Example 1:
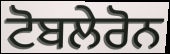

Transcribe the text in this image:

ਟੋਬਲੇਰੋਨ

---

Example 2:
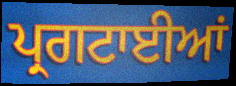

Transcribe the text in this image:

ਪ੍ਰਗਟਾਈਆਂ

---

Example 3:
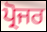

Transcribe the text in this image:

ਪ੍ਰੋਜਰ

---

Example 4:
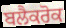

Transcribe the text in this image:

ਬਲੈਕਰੋਕ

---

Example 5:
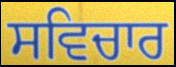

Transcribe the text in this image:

ਸਵਿਚਾਰ